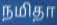
நமிதா